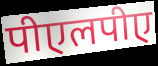
पीएलपीए